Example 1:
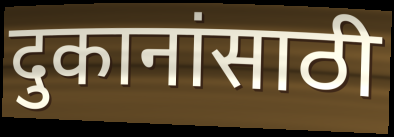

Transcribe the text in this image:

दुकानांसाठी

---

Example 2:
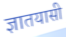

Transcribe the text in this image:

ज्ञातयासी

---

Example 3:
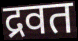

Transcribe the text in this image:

द्रवत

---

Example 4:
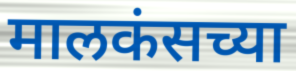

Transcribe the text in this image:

मालकंसच्या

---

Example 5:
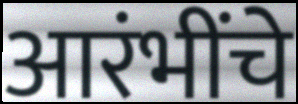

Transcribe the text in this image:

आरंभींचे